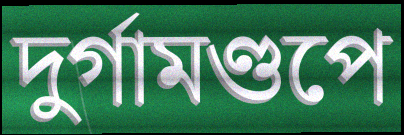
দুর্গামণ্ডপে